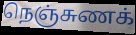
நெஞ்சுணக்